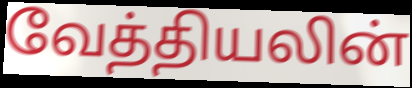
வேத்தியலின்